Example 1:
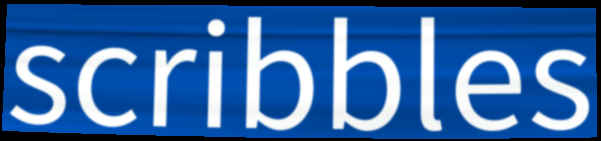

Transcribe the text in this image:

scribbles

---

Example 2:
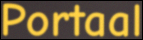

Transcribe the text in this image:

Portaal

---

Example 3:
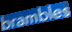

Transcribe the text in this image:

brambles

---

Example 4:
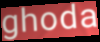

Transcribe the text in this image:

ghoda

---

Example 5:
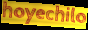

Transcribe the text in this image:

hoyechilo